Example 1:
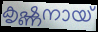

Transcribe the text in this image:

കൃഷ്ണനായ്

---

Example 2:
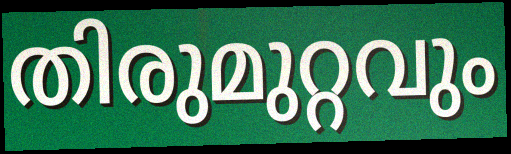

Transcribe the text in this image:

തിരുമുറ്റവും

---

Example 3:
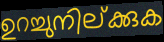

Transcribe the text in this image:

ഉറച്ചുനില്ക്കുക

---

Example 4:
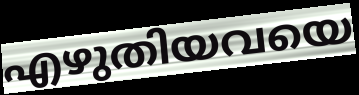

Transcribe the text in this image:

എഴുതിയവയെ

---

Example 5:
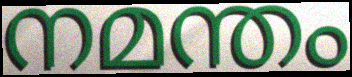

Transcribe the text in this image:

നമന്തം